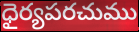
ధైర్యపరచుము